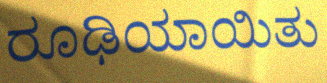
ರೂಢಿಯಾಯಿತು